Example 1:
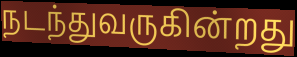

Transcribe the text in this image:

நடந்துவருகின்றது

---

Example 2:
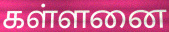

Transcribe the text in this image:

கள்ளனை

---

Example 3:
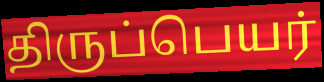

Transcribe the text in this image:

திருப்பெயர்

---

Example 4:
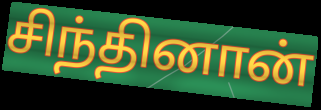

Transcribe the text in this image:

சிந்தினான்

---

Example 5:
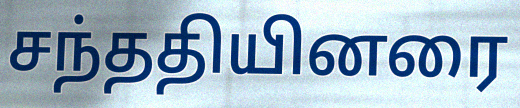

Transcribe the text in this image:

சந்ததியினரை